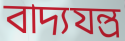
বাদ্যযন্ত্ৰ